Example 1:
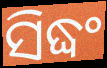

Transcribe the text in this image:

ସିଦ୍ଧଂ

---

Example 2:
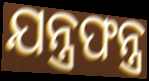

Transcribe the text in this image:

ଯନ୍ତ୍ରଫନ୍ତ୍ର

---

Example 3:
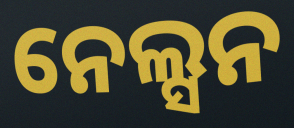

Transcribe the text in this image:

ନେଲ୍ସନ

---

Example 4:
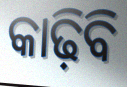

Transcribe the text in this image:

କାଢ଼ିବି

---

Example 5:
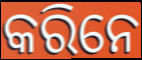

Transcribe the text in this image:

କରିନେ